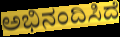
ಅಭಿನಂದಿಸಿದೆ